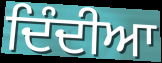
ਦਿੰਦੀਆ